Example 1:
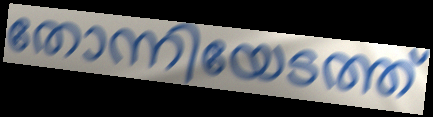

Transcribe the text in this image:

തോന്നിയേടത്ത്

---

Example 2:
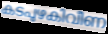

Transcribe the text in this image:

കടപുഴകിവീണ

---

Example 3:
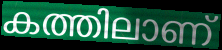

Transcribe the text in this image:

കത്തിലാണ്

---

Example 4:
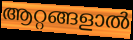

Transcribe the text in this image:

ആറ്റങ്ങളാൽ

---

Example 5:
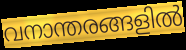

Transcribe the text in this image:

വനാന്തരങ്ങളിൽ